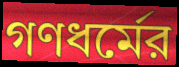
গণধর্মের